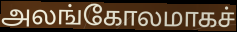
அலங்கோலமாகச்